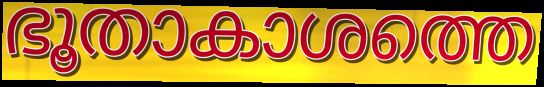
ഭൂതാകാശത്തെ